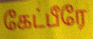
கேட்பீரே